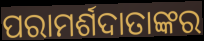
ପରାମର୍ଶଦାତାଙ୍କର